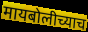
मायबोलीच्याच